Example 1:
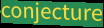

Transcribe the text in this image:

conjecture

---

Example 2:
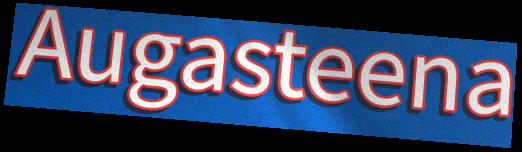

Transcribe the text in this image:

Augasteena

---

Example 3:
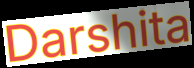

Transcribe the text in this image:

Darshita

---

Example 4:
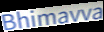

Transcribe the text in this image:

Bhimavva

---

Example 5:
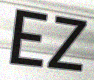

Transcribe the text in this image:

EZ